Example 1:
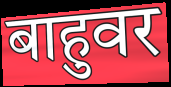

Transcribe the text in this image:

बाहुवर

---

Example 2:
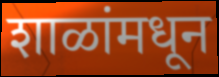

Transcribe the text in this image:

शाळांमधून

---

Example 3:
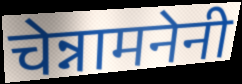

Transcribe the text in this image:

चेन्नामनेनी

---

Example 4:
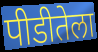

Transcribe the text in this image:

पीडीतेला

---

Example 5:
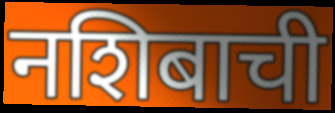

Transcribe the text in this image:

नशिबाची